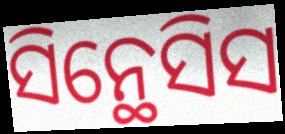
ସିନ୍ଥେସିସ